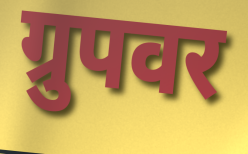
ग्रुपवर